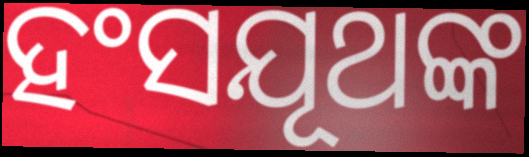
ହଂସଯୂଥଙ୍କ